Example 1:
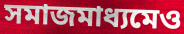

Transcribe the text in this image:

সমাজমাধ্যমেও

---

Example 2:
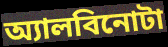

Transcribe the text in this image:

অ্যালবিনোটা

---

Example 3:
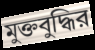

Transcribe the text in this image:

মুক্তবুদ্ধির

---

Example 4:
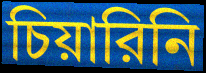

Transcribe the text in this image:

চিয়ারিনি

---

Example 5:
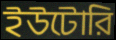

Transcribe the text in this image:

ইউটোরি